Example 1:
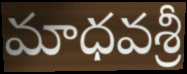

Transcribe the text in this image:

మాధవశ్రీ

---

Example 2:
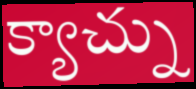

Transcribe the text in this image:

క్యాచ్ను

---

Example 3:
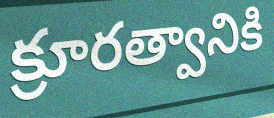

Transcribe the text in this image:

క్రూరత్వానికి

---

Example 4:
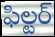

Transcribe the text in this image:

ఫిల్టర్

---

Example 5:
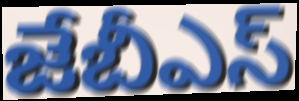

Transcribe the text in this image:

జేబీఎస్